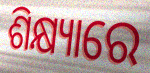
ଶିକ୍ଷ୍ୟାରେ